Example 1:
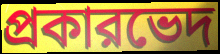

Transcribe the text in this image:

প্রকারভেদ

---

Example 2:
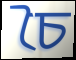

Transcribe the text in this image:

চৈ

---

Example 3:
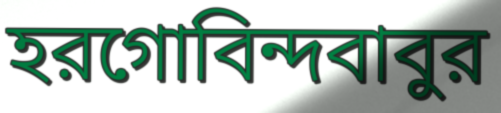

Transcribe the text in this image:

হরগোবিন্দবাবুর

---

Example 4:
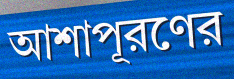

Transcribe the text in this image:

আশাপূরণের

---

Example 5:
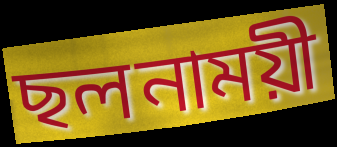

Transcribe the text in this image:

ছলনাময়ী